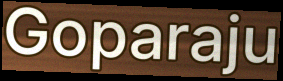
Goparaju